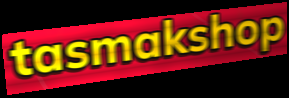
tasmakshop